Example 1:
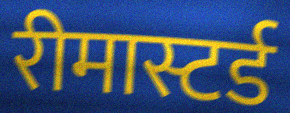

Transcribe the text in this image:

रीमास्टर्ड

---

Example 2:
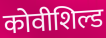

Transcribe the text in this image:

कोवीशिल्ड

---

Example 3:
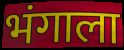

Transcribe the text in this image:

भंगाला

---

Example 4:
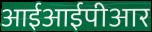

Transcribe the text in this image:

आईआईपीआर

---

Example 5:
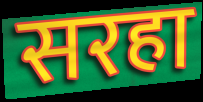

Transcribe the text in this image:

सरहा